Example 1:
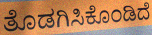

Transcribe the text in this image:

ತೊಡಗಿಸಿಕೊಂಡಿದೆ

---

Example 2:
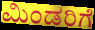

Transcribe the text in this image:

ಮಿಂಡರಿಗೆ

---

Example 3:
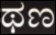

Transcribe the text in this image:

ಥಣ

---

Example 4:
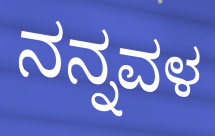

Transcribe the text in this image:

ನನ್ನವಳ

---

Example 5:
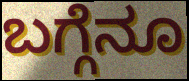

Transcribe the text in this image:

ಬಗ್ಗೆನೂ